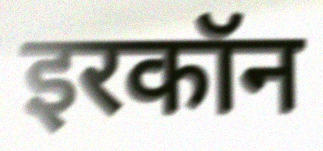
इरकॉन